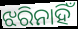
ଝରିନାହିଁ